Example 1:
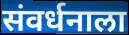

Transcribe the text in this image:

संवर्धनाला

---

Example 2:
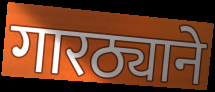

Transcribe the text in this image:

गारठ्याने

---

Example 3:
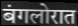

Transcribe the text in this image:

बंगलोरात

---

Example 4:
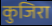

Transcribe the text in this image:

कुजिरा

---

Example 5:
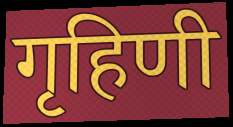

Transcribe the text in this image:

गृहिणी